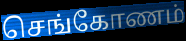
செங்கோணம்